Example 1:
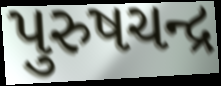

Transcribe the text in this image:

પુરુષચન્દ્ર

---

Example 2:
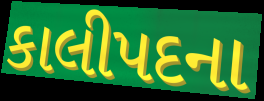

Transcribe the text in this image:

કાલીપદના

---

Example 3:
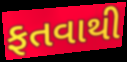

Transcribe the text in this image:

ફતવાથી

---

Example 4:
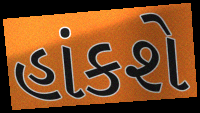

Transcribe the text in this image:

હાંકશે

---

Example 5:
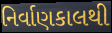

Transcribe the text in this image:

નિર્વાણકાલથી